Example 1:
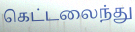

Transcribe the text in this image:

கெட்டலைந்து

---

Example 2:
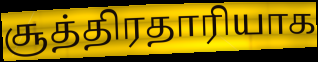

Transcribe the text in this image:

சூத்திரதாரியாக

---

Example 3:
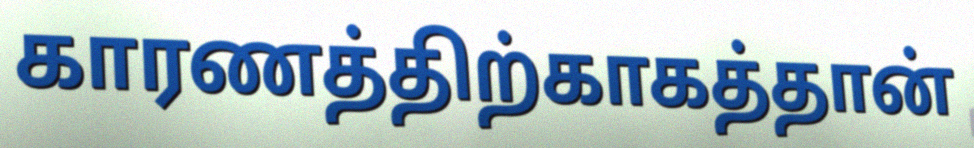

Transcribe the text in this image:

காரணத்திற்காகத்தான்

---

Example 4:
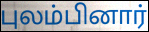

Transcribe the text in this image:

புலம்பினார்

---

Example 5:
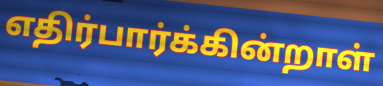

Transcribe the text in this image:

எதிர்பார்க்கின்றாள்